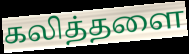
கலித்தளை